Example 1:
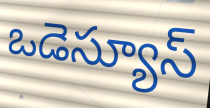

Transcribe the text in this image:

ఒడెస్యూస్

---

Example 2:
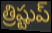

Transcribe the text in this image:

త్రిష్టుప్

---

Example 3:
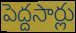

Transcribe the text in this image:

పెద్దసార్లు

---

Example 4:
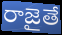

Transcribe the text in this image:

రాజైతే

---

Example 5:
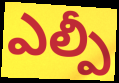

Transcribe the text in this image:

ఎల్పీ